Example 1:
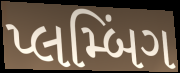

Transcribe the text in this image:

પ્લમ્બિંગ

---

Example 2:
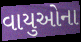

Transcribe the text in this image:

વાયુઓના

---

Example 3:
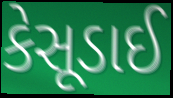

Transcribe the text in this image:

કેસૂડાઈ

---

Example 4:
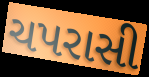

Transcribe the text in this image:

ચપરાસી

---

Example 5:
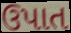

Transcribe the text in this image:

ઉપાત